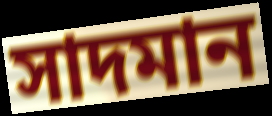
সাদমান